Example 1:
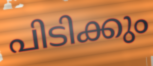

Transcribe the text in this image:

പിടിക്കും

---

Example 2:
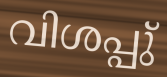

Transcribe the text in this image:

വിശപ്പു്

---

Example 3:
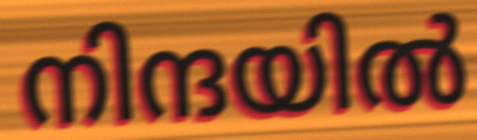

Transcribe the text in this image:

നിന്ദയിൽ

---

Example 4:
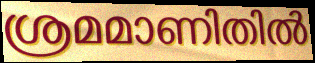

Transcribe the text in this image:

ശ്രമമാണിതിൽ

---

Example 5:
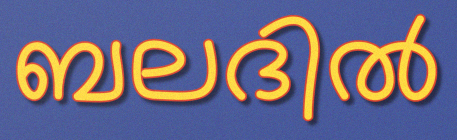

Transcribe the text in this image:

ബലദിൽ